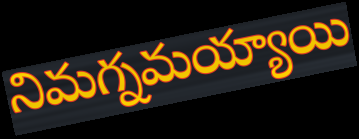
నిమగ్నమయ్యాయి